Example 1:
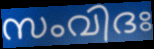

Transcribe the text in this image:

സംവിദഃ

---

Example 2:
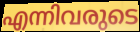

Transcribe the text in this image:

എന്നിവരുടെ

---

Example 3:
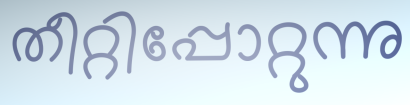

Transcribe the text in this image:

തീറ്റിപ്പോറ്റുന്നു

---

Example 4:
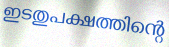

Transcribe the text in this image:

ഇടതുപക്ഷത്തിന്റെ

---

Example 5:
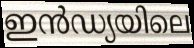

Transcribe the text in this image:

ഇൻഡ്യയിലെ